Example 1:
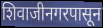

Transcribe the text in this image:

शिवाजीनगरपासून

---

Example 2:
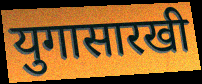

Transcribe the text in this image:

युगासारखी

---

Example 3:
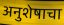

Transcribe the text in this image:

अनुशेषाचा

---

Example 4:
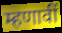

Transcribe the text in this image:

म्हणावीं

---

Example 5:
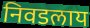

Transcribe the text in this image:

निवडलाय